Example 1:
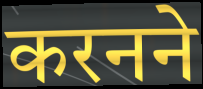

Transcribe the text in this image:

करनने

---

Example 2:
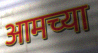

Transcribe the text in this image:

आमच्या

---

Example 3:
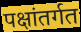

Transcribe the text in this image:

पक्षांतर्गत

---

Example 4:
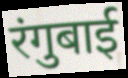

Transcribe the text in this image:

रंगुबाई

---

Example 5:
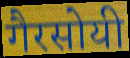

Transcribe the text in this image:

गैरसोयी